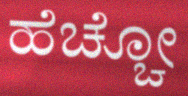
ಹೆಚ್ಚೋ